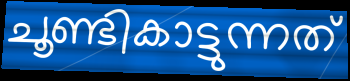
ചൂണ്ടികാട്ടുന്നത്